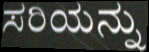
ಸರಿಯನ್ನು